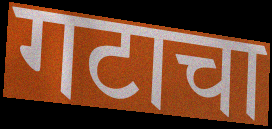
गटाचा